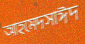
আহমেদসাঈদ